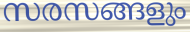
സരസങ്ങളും